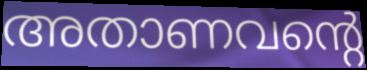
അതാണവന്റെ